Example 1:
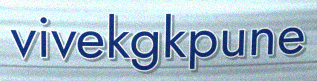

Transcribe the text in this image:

vivekgkpune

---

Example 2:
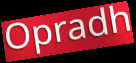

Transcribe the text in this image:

Opradh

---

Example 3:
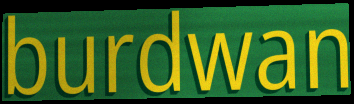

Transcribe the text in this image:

burdwan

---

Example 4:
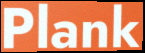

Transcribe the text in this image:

Plank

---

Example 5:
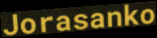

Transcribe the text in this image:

Jorasanko